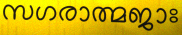
സഗരാത്മജാഃ